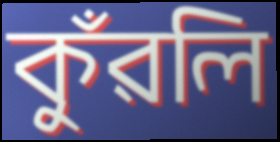
কুঁৱলি